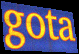
gota